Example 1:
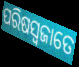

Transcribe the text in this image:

ପରିଷସ୍ଵଜାତେ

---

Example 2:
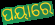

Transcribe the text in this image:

ପୟାରେ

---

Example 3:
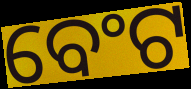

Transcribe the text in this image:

ବେଂଟ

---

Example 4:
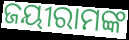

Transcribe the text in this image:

ଜୟୀରାମଙ୍କ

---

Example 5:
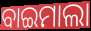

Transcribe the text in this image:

ବାଇମାଲା